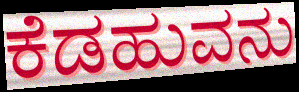
ಕೆಡಹುವನು